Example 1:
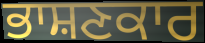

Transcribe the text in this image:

ਭਾਸ਼ਣਕਾਰ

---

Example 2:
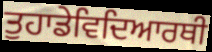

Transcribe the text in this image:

ਤੁਹਾਡੇਵਿਦਿਆਰਥੀ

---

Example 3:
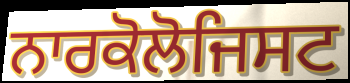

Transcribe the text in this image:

ਨਾਰਕੋਲੋਜਿਸਟ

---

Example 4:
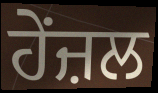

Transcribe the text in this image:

ਹੇਂਜ਼ਲ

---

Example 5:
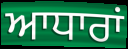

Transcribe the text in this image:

ਆਧਾਰਾਂ